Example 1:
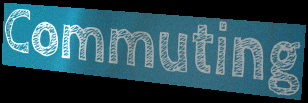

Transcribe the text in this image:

Commuting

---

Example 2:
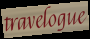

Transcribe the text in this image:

travelogue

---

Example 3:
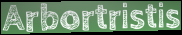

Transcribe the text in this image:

Arbortristis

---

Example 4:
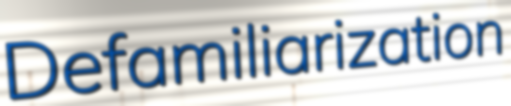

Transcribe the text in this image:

Defamiliarization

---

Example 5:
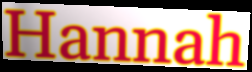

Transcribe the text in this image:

Hannah